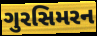
ગુરસિમરન